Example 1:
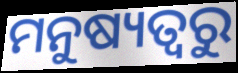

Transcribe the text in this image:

ମନୁଷ୍ୟତ୍ୱରୁ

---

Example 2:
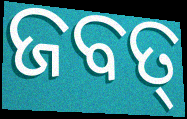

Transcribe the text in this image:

ଜବତ୍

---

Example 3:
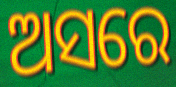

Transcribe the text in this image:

ଅସରେ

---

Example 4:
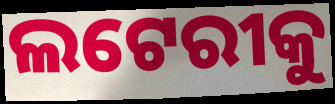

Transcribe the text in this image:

ଲଟେରୀକୁ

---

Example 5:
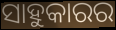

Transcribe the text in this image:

ସାହୁକାରର